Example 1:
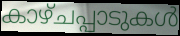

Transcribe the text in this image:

കാഴ്ചപ്പാടുകൾ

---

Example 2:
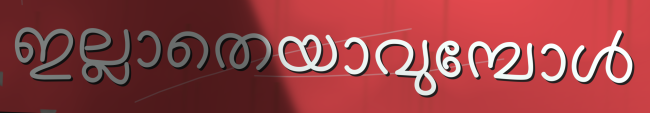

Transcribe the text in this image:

ഇല്ലാതെയാവുമ്പോൾ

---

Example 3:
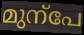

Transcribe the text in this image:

മുന്പേ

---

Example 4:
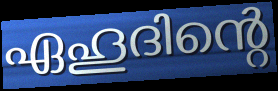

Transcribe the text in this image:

ഏഹൂദിന്റെ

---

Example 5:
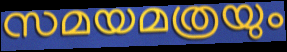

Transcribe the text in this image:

സമയമത്രയും